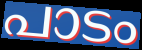
പാടം